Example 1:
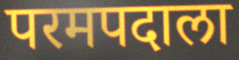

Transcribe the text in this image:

परमपदाला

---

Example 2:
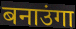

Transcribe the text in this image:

बनाउंगा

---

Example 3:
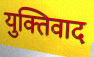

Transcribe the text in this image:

युक्तिवाद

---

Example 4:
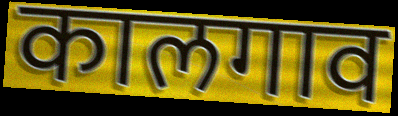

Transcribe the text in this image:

कालगाव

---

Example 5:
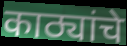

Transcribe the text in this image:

काठ्यांचे